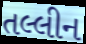
તલ્લીન